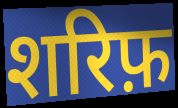
शरिफ़